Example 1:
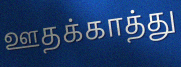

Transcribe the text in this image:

ஊதக்காத்து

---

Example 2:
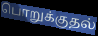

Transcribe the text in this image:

பொறுக்குதல்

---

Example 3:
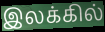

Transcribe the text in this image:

இலக்கில்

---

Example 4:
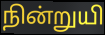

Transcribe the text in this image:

நின்றுயி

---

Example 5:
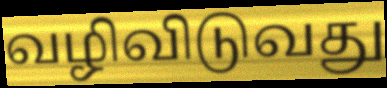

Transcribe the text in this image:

வழிவிடுவது